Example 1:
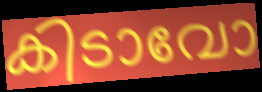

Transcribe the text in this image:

കിടാവോ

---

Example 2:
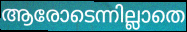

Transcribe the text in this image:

ആരോടെന്നില്ലാതെ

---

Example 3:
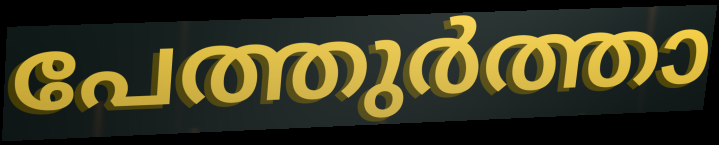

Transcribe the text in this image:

പേത്തുർത്താ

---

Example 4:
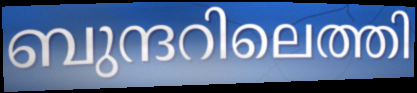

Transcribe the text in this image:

ബുന്ദറിലെത്തി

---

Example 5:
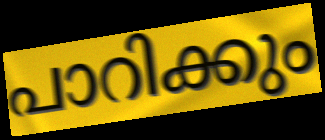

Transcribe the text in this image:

പാറിക്കും